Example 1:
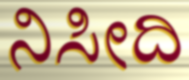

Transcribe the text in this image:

ನಿಸೀದಿ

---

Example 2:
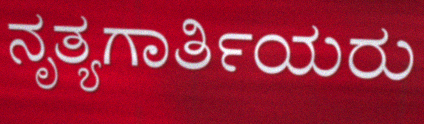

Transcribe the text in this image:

ನೃತ್ಯಗಾರ್ತಿಯರು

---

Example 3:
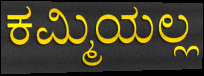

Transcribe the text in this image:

ಕಮ್ಮಿಯಲ್ಲ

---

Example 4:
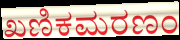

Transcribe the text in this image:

ಖಣಿಕಮರಣಂ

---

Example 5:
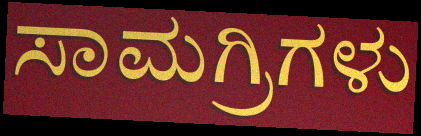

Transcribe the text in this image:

ಸಾಮಗ್ರಿಗಳು